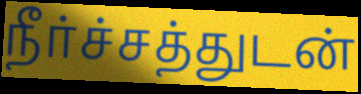
நீர்ச்சத்துடன்